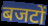
बजटों